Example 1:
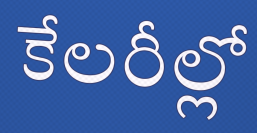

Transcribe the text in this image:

కేలరీల్లో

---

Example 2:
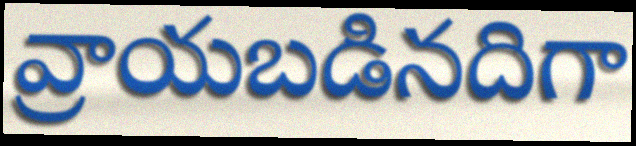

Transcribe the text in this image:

వ్రాయబడినదిగా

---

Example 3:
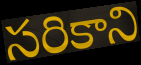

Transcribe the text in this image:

సరికాని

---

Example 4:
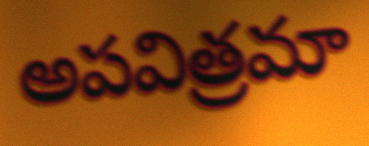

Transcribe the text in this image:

అపవిత్రమా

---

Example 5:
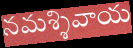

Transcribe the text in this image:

నమశ్శివాయ